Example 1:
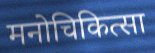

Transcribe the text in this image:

मनोचिकित्सा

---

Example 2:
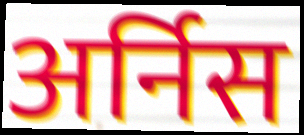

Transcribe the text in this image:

अर्निस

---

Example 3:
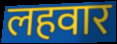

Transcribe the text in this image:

लहवार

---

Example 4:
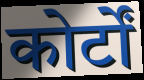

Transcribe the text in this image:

कोर्टों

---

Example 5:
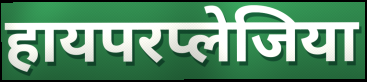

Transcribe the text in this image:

हायपरप्लेजिया